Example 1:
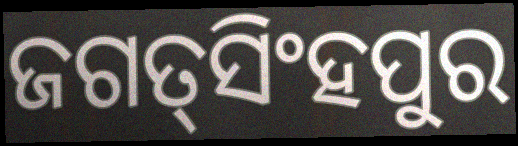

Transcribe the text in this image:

ଜଗତ୍‌ସିଂହପୁର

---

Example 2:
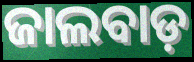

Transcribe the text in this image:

ଜାଲବାଡ଼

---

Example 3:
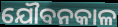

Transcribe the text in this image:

ଯୌବନକାଳ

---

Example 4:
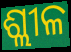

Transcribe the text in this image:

ଶ୍ଲୀଳ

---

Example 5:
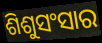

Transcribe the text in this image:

ଶିଶୁସଂସାର